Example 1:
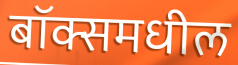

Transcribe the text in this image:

बॉक्समधील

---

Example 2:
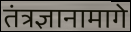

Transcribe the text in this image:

तंत्रज्ञानामागे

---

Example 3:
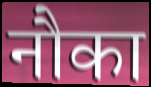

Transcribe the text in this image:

नौका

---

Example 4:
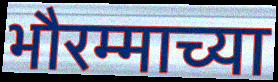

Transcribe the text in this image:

भौरम्माच्या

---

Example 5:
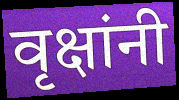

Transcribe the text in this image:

वृक्षांनी